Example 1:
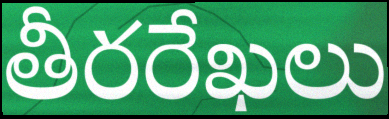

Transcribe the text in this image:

తీరరేఖలు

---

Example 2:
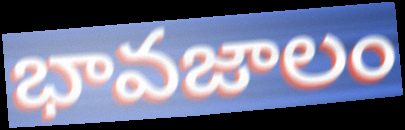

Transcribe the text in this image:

భావజాలం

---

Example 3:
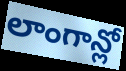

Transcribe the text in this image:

లాంగాన్లో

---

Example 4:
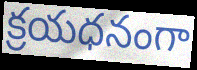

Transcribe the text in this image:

క్రయధనంగా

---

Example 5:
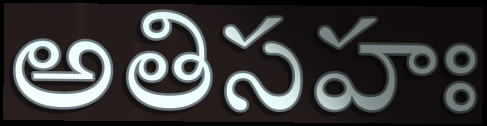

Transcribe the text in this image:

అతిసహః